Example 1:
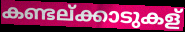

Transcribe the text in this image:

കണ്ടല്ക്കാടുകള്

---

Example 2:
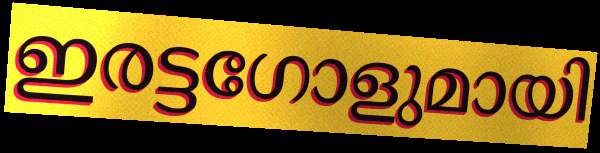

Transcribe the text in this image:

ഇരട്ടഗോളുമായി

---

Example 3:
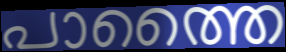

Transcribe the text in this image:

പാത്തൈ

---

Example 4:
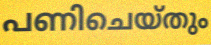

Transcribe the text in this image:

പണിചെയ്തും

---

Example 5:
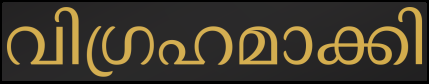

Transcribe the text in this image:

വിഗ്രഹമാക്കി